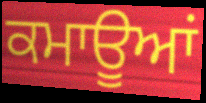
ਕਮਾਊਆਂ